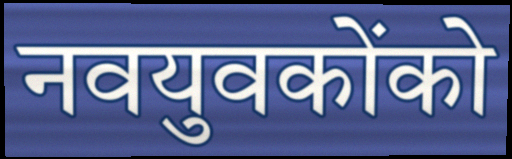
नवयुवकोंको